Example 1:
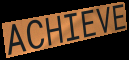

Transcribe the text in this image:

ACHIEVE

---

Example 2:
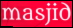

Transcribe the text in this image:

masjid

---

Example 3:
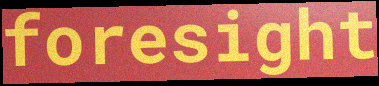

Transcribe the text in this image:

foresight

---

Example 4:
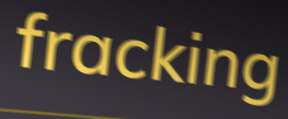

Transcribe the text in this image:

fracking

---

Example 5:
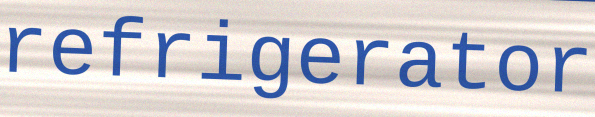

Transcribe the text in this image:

refrigerator